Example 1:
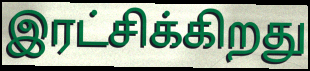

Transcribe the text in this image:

இரட்சிக்கிறது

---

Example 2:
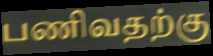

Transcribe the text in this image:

பணிவதற்கு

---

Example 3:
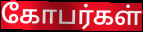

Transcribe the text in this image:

கோபர்கள்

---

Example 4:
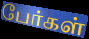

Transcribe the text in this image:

பேர்கள்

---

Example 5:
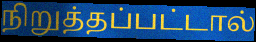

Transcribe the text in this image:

நிறுத்தப்பட்டால்